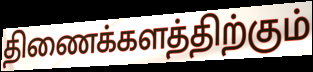
திணைக்களத்திற்கும்